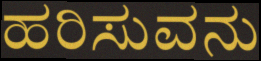
ಹರಿಸುವನು